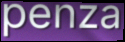
penza